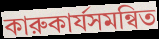
কারুকার্যসমন্বিত